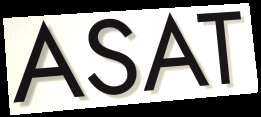
ASAT